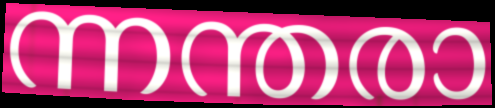
ന്നന്തരാ